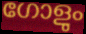
ഗോളും